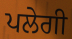
ਪਲੇਗੀ